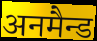
अनमैन्ड